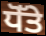
ਧੋੱਤੇ